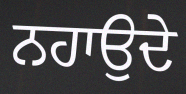
ਨਹਾਉਦੇ